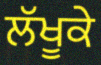
ਲੱਖੂਕੇ